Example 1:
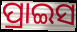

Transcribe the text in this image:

ପ୍ରାଇସ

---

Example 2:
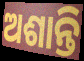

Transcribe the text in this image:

ଅଶାନ୍ତି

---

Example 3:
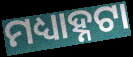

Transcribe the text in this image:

ମଧ୍ୟାହ୍ନଟା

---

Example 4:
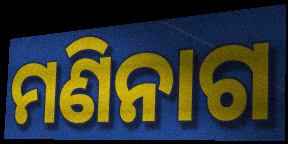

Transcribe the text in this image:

ମଣିନାଗ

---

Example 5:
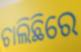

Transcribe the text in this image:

ଚାଲିଛିରେ